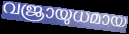
വജ്രായുധമായ